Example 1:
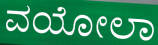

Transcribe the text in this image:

ವಯೋಲಾ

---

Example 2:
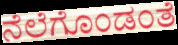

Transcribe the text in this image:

ನೆಲೆಗೊಂಡಂತೆ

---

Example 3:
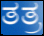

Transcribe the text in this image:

ತತ್ರ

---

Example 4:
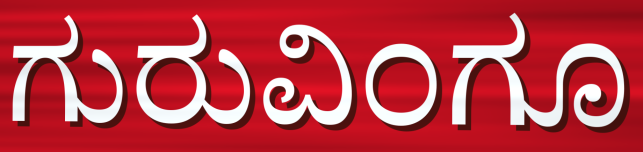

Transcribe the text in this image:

ಗುರುವಿಂಗೂ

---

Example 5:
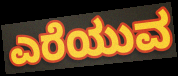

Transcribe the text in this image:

ಎರೆಯುವ